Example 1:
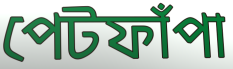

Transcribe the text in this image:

পেটফাঁপা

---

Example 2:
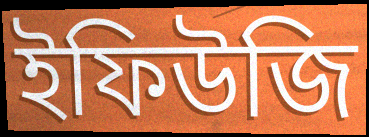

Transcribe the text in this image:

ইফিউজি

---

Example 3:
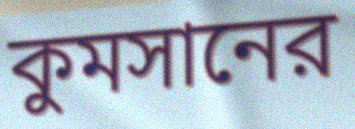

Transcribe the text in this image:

কুমসানের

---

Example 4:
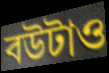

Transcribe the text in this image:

বউটাও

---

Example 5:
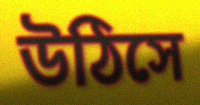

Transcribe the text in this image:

উঠিসে